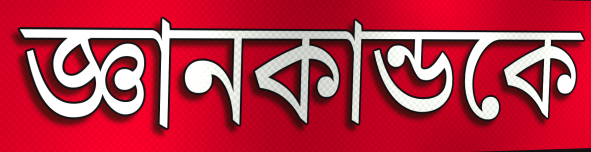
জ্ঞানকান্ডকে